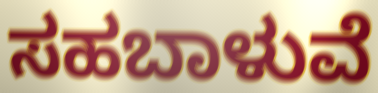
ಸಹಬಾಳುವೆ